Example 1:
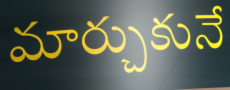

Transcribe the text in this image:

మార్చుకునే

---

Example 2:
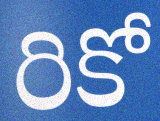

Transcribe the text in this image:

రికో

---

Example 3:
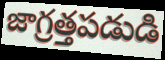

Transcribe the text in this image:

జాగ్రత్తపడుడి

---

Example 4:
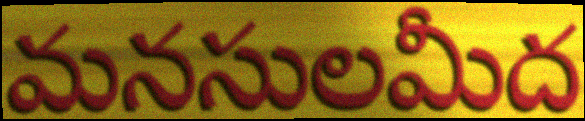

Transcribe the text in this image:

మనసులమీద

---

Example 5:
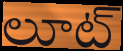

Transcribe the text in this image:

లూట్